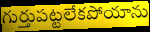
గుర్తుపట్టలేకపోయాను